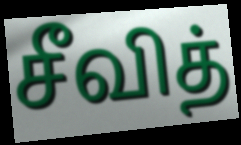
சீவித்